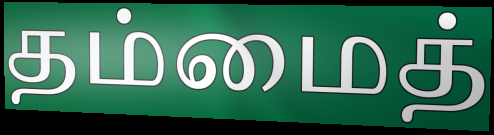
தம்மைத்